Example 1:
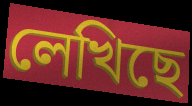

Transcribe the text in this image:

লেখিছে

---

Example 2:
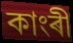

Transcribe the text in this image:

কাংৰী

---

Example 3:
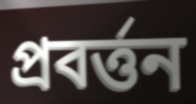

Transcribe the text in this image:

প্ৰবৰ্ত্তন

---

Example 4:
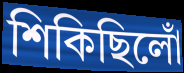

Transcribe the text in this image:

শিকিছিলোঁ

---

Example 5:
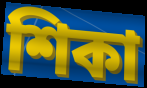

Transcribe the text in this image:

শিকা